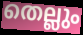
തെല്ലും